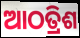
ଆଠତ୍ରିଶ